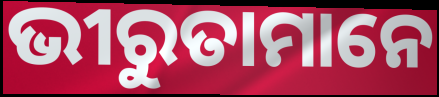
ଭୀରୁତାମାନେ